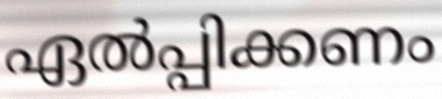
ഏൽപ്പിക്കണം